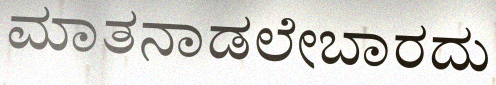
ಮಾತನಾಡಲೇಬಾರದು